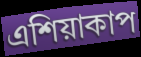
এশিয়াকাপ